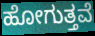
ಹೋಗುತ್ತವೆ